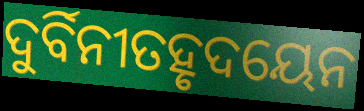
ଦୁର୍ବିନୀତହୃଦୟେନ